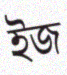
ইজ